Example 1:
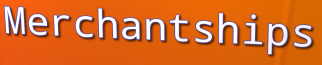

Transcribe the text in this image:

Merchantships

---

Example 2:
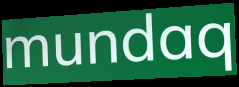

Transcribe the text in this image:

mundaq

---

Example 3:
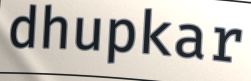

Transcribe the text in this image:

dhupkar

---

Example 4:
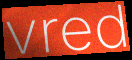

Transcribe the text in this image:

vred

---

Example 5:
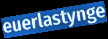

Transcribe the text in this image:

euerlastynge